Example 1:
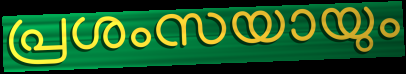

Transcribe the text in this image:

പ്രശംസയായും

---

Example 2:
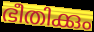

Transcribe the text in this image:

ഭീതിക്കും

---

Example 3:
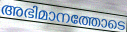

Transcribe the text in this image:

അഭിമാനത്തോടെ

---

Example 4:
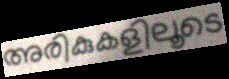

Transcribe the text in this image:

അരികുകളിലൂടെ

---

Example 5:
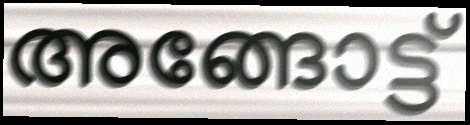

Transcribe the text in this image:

അങ്ങോട്ട്